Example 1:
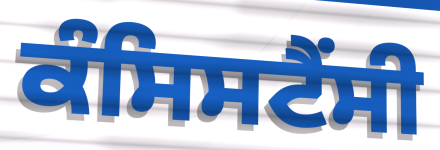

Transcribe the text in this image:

ਕੰਸਿਸਟੈਂਸੀ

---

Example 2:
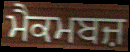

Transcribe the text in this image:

ਮੈਕਮਬਜ਼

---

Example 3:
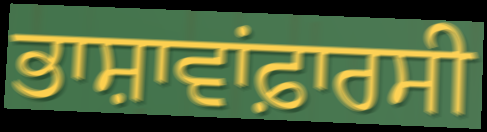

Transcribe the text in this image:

ਭਾਸ਼ਾਵਾਂਫ਼ਾਰਸੀ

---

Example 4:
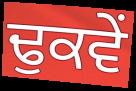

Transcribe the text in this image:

ਢੁਕਵੇਂ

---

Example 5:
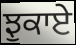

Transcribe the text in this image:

ਝੁਕਾਏ